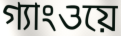
গ্যাংওয়ে